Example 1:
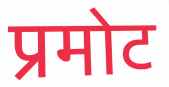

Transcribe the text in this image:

प्रमोट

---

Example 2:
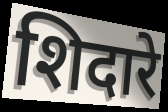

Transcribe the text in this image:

शिदारे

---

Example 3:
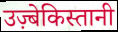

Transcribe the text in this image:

उज़्बेकिस्तानी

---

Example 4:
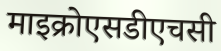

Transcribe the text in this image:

माइक्रोएसडीएचसी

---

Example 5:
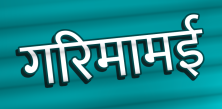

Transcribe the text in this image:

गरिमामई